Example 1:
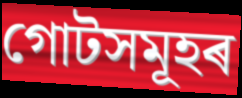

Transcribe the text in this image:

গোটসমূহৰ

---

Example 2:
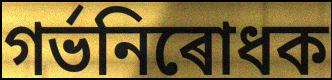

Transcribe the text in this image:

গৰ্ভনিৰোধক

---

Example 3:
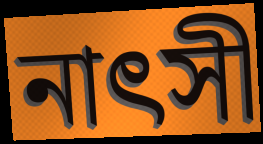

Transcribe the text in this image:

নাৎসী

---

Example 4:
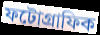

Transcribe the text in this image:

ফটোগ্ৰাফিক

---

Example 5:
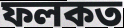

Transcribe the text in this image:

ফলকত